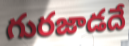
గురజాడదే